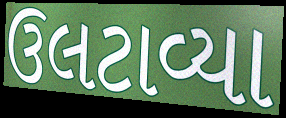
ઉલટાવ્યા